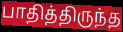
பாதித்திருந்த